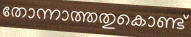
തോന്നാത്തതുകൊണ്ട്